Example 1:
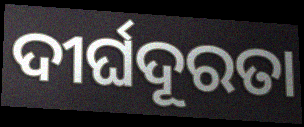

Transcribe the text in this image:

ଦୀର୍ଘଦୂରତା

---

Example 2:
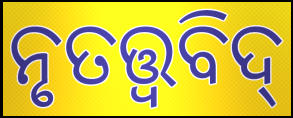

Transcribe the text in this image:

ନୃତତ୍ତ୍ଵବିଦ୍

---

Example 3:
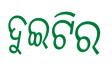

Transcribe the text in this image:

ଦୁଇଟିର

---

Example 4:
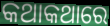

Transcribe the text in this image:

କଥାକଥାରେ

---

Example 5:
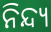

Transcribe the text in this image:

ନିନ୍ଦ୍ୟ